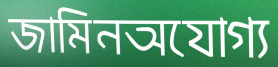
জামিনঅযোগ্য